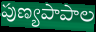
పుణ్యపాపాల